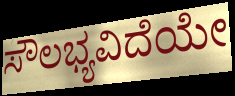
ಸೌಲಭ್ಯವಿದೆಯೇ